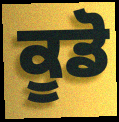
ਕੂਡੋ